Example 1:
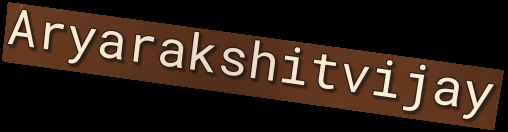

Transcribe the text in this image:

Aryarakshitvijay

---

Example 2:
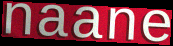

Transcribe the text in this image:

naane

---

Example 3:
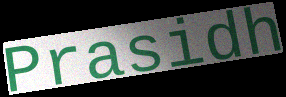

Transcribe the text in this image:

Prasidh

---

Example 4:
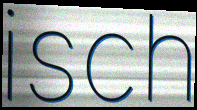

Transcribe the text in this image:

isch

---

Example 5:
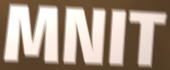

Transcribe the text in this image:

MNIT